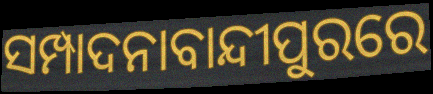
ସମ୍ପାଦନାବାନ୍ଦୀପୁରରେ